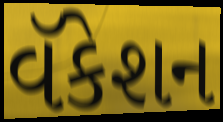
વૅકેશન